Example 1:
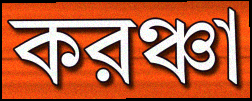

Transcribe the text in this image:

করঞ্চা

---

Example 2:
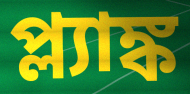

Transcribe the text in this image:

প্ল্যাঙ্ক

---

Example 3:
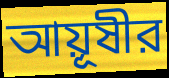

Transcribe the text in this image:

আয়ূষীর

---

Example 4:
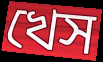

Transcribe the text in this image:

খেস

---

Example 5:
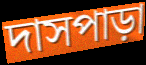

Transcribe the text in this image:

দাসপাড়া